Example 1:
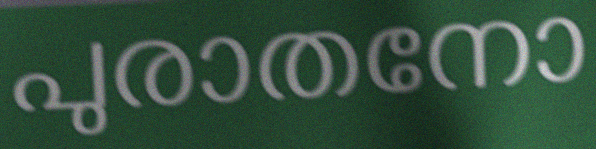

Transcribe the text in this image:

പുരാതനോ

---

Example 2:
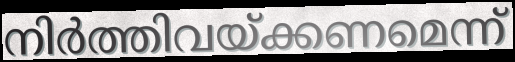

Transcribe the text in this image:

നിർത്തിവയ്ക്കണമെന്ന്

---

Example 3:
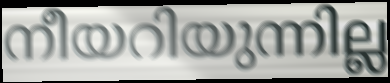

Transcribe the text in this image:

നീയറിയുന്നില്ല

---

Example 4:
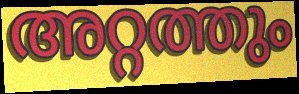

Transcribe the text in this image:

അറ്റത്തും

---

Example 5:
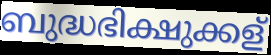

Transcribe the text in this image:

ബുദ്ധഭിക്ഷുക്കള്